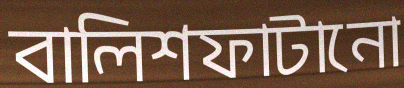
বালিশফাটানো